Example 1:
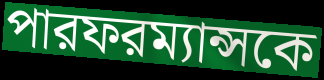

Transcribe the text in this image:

পারফরম্যান্সকে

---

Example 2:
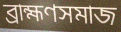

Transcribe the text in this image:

ব্রাহ্মণসমাজ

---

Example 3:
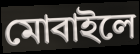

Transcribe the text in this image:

মোবাইলে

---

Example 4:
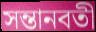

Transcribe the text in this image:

সন্তানবতী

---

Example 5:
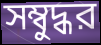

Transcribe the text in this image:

সম্বুদ্ধর